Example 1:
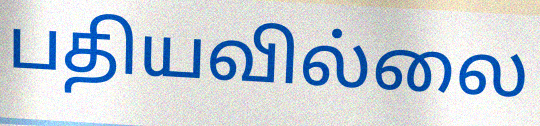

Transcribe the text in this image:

பதியவில்லை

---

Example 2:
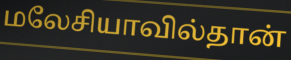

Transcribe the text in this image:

மலேசியாவில்தான்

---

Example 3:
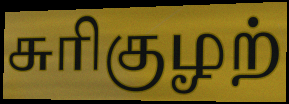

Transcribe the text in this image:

சுரிகுழற்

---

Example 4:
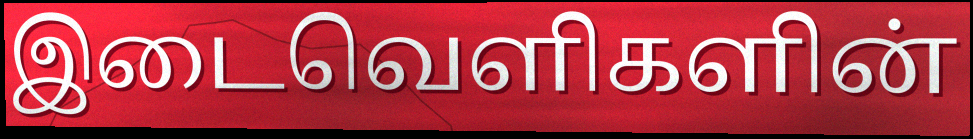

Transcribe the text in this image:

இடைவெளிகளின்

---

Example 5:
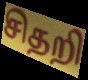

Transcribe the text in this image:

சிதறி